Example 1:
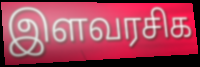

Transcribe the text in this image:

இளவரசிக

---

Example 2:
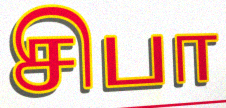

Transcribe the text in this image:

சிபா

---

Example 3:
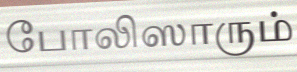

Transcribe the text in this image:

போலிஸாரும்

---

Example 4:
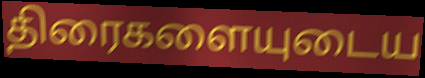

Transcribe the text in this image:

திரைகளையுடைய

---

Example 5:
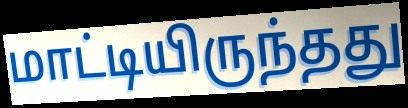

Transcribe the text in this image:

மாட்டியிருந்தது